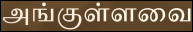
அங்குள்ளவை